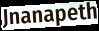
Jnanapeth